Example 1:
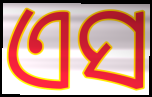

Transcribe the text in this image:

ଏସ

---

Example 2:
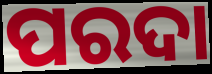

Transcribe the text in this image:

ପରଦା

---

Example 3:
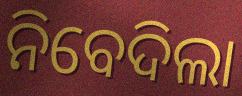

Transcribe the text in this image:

ନିବେଦିଲା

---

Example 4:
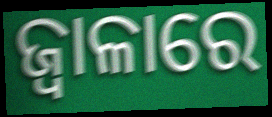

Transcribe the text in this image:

ଜ୍ଵାଳାରେ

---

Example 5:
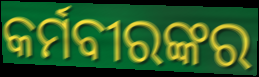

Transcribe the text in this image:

କର୍ମବୀରଙ୍କର